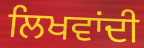
ਲਿਖਵਾਂਦੀ